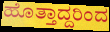
ಹೊತ್ತಾದ್ದರಿಂದ